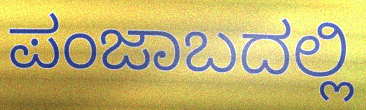
ಪಂಜಾಬದಲ್ಲಿ